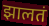
झालतं